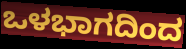
ಒಳಭಾಗದಿಂದ